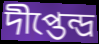
দীপ্তেন্দ্র